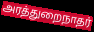
அரத்துறைநாதர்